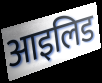
आइलिड